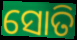
ସୋତି